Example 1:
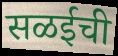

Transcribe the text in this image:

सळईची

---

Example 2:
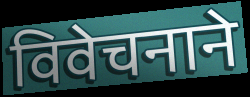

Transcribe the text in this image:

विवेचनाने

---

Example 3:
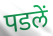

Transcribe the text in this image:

पडलें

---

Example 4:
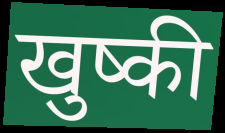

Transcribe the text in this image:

खुष्की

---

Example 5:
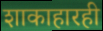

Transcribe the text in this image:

शाकाहारही